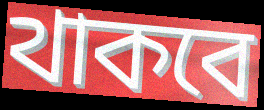
থাকবে